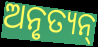
ଅନୃତ୍ୟନ୍